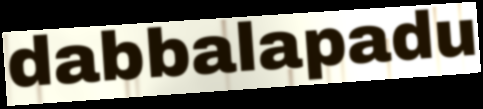
dabbalapadu